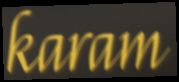
karam